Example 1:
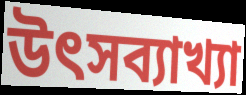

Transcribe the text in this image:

উৎসব্যাখ্যা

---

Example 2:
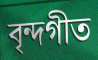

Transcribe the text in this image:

বৃন্দগীত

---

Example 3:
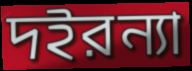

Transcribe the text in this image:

দইরন্যা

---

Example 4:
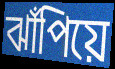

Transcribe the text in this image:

ঝাঁপিয়ে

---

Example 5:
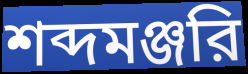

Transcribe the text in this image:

শব্দমঞ্জরি